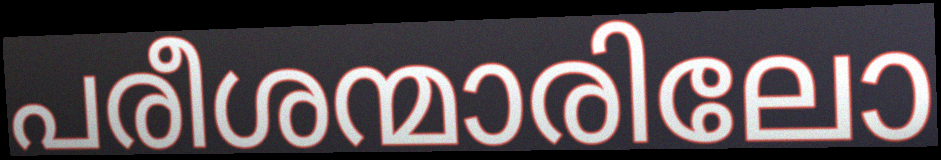
പരീശന്മാരിലോ